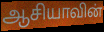
ஆசியாவின்